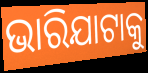
ଭାରିଯାଟାକୁ